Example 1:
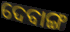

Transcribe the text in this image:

ଦେବାଙ୍ଗ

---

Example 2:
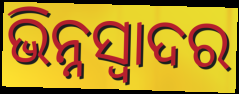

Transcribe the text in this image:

ଭିନ୍ନସ୍ବାଦର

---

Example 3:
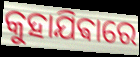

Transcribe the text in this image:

କୁହାଯିଵାରେ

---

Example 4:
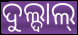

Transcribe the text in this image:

ଦୁଲ୍ଦାଲ୍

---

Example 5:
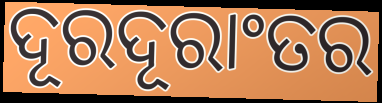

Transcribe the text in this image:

ଦୂରଦୂରାଂତର